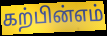
கற்பின்எம்